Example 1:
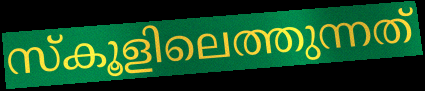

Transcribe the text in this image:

സ്കൂളിലെത്തുന്നത്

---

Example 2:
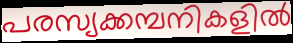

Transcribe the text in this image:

പരസ്യക്കമ്പനികളിൽ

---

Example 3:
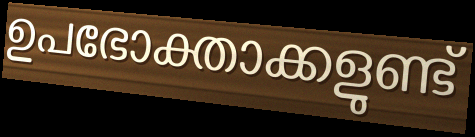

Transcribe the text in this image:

ഉപഭോക്താക്കളുണ്ട്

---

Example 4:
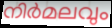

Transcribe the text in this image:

നിർമലവും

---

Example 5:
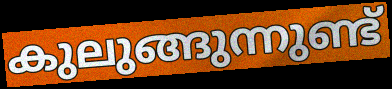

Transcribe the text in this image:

കുലുങ്ങുന്നുണ്ട്